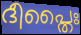
ദീപ്തൈഃ